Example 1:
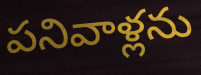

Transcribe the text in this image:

పనివాళ్లను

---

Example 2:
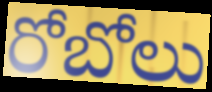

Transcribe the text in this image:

రోబోలు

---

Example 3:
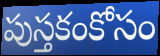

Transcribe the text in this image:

పుస్తకంకోసం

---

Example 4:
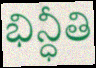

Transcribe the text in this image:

భిన్ధీతి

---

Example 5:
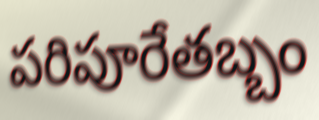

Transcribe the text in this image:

పరిపూరేతబ్బం